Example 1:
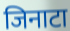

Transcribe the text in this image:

जिनाटा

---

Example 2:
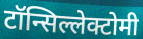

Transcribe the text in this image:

टॉन्सिल्लेक्टोमी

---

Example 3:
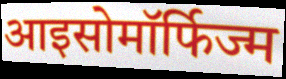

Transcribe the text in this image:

आइसोमॉर्फिज्म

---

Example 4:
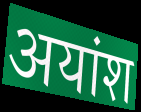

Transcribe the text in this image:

अयांश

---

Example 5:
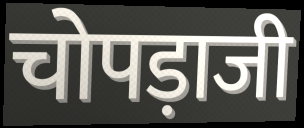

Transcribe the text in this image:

चोपड़ाजी